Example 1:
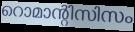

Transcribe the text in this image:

റൊമാന്റിസിസം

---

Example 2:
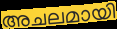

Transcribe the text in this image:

അചലമായി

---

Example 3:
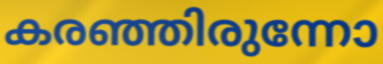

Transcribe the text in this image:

കരഞ്ഞിരുന്നോ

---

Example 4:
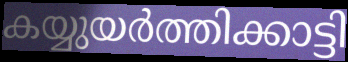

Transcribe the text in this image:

കയ്യുയർത്തിക്കാട്ടി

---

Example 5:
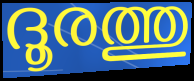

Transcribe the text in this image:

ദൂരത്തു